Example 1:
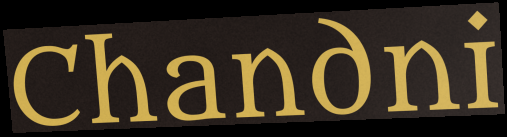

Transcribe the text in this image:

Chandni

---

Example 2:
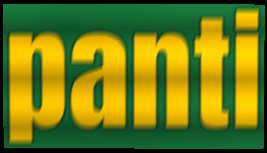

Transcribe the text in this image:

panti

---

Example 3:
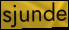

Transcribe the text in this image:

sjunde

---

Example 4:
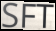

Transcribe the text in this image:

SFT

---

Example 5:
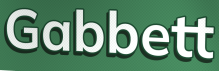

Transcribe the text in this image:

Gabbett